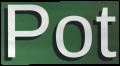
Pot